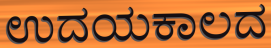
ಉದಯಕಾಲದ